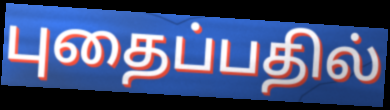
புதைப்பதில்